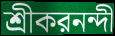
শ্রীকরনন্দী